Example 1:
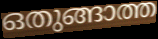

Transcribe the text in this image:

ഒതുങ്ങാത്ത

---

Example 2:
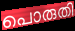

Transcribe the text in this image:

പൊരുതി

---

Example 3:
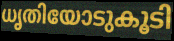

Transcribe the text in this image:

ധൃതിയോടുകൂടി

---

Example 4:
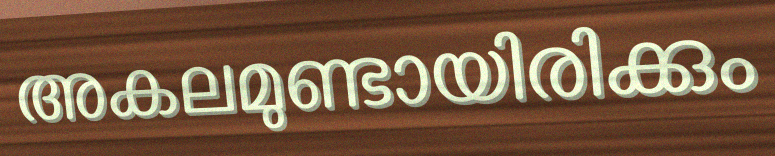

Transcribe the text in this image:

അകലമുണ്ടായിരിക്കും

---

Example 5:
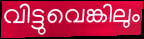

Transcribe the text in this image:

വിട്ടുവെങ്കിലും